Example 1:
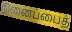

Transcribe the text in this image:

நினைப்பைத்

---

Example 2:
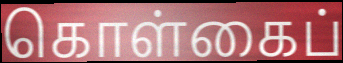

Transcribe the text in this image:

கொள்கைப்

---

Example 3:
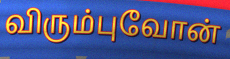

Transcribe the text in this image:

விரும்புவோன்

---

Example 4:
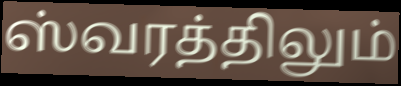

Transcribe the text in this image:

ஸ்வரத்திலும்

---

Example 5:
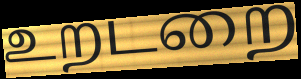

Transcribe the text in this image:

உறடறை